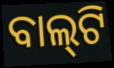
ବାଲ୍‍ଟି